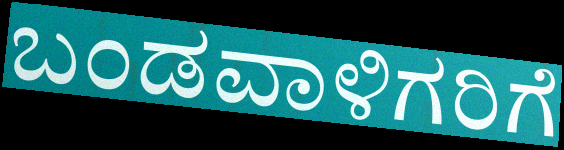
ಬಂಡವಾಳಿಗರಿಗೆ